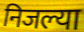
निजल्या